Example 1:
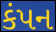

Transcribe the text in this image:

કંપન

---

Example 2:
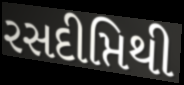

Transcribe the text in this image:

રસદીપ્તિથી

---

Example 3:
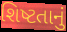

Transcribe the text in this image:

શિષ્ટતાનું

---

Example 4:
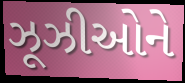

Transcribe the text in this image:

ઝૂઝીઓને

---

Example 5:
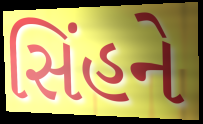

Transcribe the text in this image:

સિંહને